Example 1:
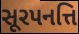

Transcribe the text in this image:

સૂરપનત્તિ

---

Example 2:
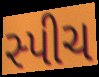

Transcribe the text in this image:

સ્પીચ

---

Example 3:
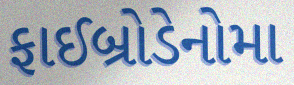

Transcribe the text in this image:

ફાઈબ્રોડેનોમા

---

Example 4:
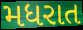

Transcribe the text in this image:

મધરાત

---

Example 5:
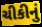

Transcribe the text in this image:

ચીકીનું